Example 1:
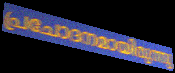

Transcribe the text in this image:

പ്രചോദനമായിരുന്നു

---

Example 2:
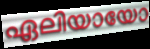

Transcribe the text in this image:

ഏലിയായോ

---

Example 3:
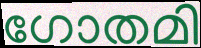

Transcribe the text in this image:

ഗോതമി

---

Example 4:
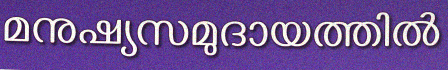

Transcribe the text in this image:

മനുഷ്യസമുദായത്തിൽ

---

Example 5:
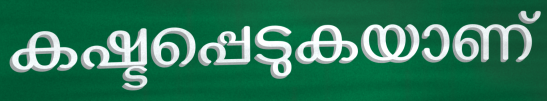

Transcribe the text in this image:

കഷ്ടപ്പെടുകയാണ്